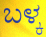
ಬಳ್ಕ